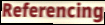
Referencing